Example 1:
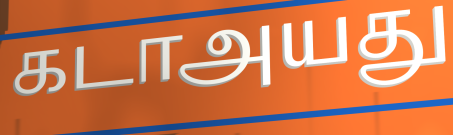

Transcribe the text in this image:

கடாஅயது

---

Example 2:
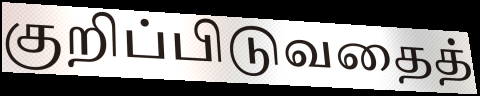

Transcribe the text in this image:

குறிப்பிடுவதைத்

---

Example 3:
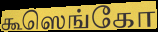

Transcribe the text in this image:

கூஸெங்கோ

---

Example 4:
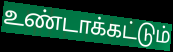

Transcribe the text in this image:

உண்டாக்கட்டும்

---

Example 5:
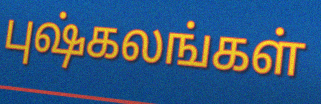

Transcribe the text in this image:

புஷ்கலங்கள்